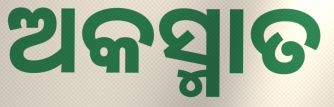
ଅକସ୍ମାତ